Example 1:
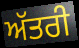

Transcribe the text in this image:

ਅੱਤਰੀ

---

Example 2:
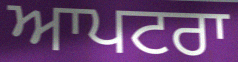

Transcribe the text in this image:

ਆਪਟਰਾ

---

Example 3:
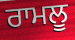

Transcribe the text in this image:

ਰਾਮਲੂ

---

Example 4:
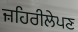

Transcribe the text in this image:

ਜ਼ਹਿਰੀਲੇਪਣ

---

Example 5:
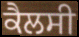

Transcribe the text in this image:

ਕੈਲਸੀ